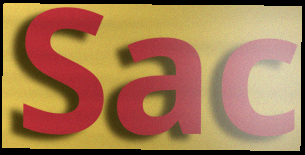
Sac